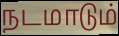
நடமாடும்